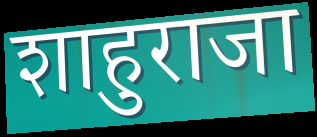
शाहुराजा